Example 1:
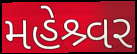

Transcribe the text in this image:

મહેશ્ર્વર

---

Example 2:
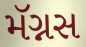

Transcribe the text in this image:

મૅગ્નસ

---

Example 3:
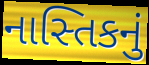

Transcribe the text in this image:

નાસ્તિકનું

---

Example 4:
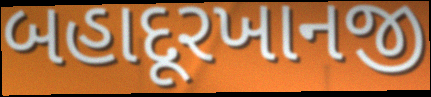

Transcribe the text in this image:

બહાદૂરખાનજી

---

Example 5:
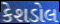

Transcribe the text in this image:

કેશડોલ